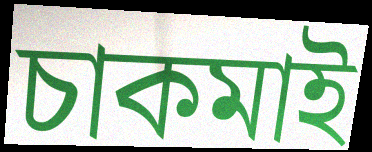
চাকমাই